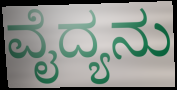
ವೈದ್ಯನು